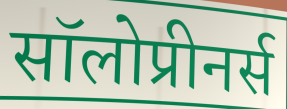
सॉलोप्रीनर्स